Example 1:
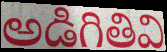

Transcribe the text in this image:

అడిగితివి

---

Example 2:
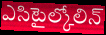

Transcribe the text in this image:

ఎసిటైల్కోలిన్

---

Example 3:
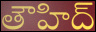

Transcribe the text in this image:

తౌహిద్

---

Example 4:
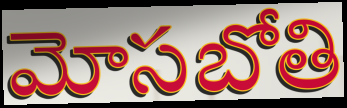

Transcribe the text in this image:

మోసబోతి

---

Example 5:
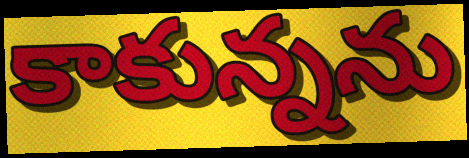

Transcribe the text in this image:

కాకున్నను